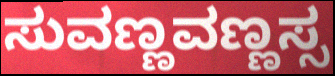
ಸುವಣ್ಣವಣ್ಣಸ್ಸ